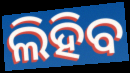
ଲିହିବ